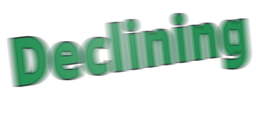
Declining